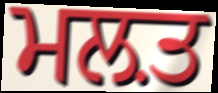
ਮਲ਼ਤ